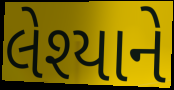
લેશ્યાને